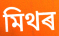
মিথৰ